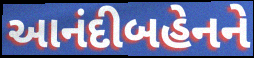
આનંદીબહેનને